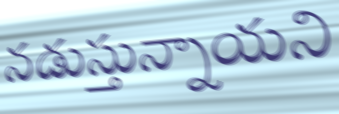
నడుస్తున్నాయని